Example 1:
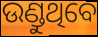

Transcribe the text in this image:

ଉଣ୍ଡୁଥିବେ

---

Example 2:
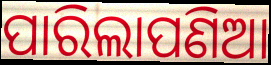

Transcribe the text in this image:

ପାରିଲାପଣିଆ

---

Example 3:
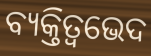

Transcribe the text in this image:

ବ୍ୟକ୍ତିତ୍ୱଭେଦ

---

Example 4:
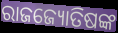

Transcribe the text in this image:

ରାଜଜ୍ୟୋତିଷଙ୍କ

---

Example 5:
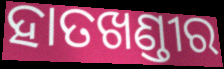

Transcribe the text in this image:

ହାତଖଣ୍ଡୀର